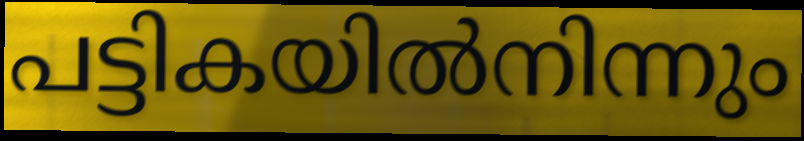
പട്ടികയിൽനിന്നും